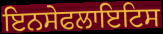
ਇਨਸੇਫਲਾਇਟਿਸ